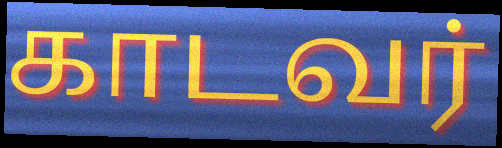
காடவர்